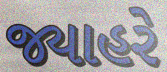
જ્યાહરે